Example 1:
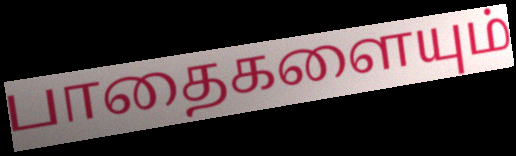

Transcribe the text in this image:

பாதைகளையும்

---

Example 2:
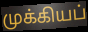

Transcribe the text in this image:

முக்கியப்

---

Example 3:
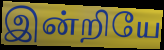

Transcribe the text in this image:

இன்றியே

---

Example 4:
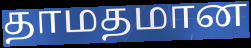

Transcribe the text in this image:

தாமதமான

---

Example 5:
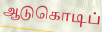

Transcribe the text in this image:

ஆடுகொடிப்